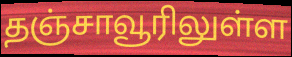
தஞ்சாவூரிலுள்ள